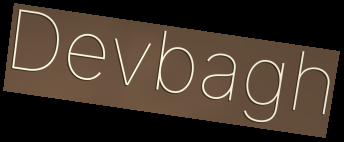
Devbagh